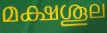
മക്ഷശൂല